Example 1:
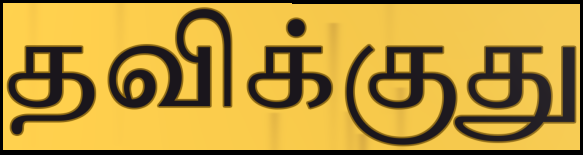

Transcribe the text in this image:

தவிக்குது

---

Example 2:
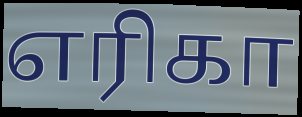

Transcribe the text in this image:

எரிகா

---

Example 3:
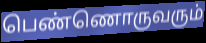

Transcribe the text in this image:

பெண்ணொருவரும்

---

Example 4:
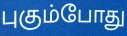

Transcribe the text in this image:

புகும்போது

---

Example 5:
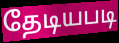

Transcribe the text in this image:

தேடியபடி